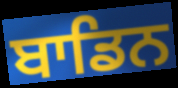
ਬਾਡਿਨ